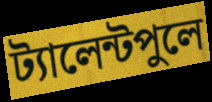
ট্যালেন্টপুলে